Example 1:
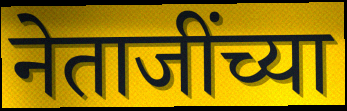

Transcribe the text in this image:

नेताजींच्या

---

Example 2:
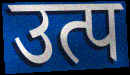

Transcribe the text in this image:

उत्प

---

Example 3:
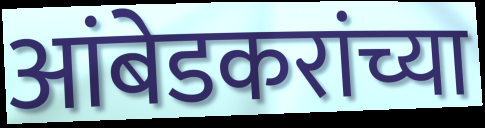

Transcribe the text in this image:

आंबेडकरांच्या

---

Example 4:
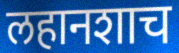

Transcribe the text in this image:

लहानशाच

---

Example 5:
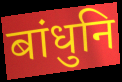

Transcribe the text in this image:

बांधुनि